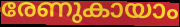
രേണുകായാം